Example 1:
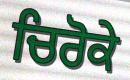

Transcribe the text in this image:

ਚਿਰੋਕੇ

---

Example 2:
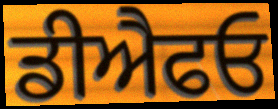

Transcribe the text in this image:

ਡੀਐਫਓ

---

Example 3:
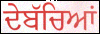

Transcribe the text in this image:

ਦੇਬੱਚਿਆਂ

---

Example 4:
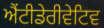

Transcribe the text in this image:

ਐਂਟੀਡੇਰੀਵੇਟਿਵ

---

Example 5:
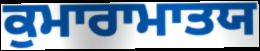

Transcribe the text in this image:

ਕੁਮਾਰਾਮਾਤਯ